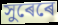
সুৰেৰে